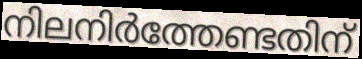
നിലനിർത്തേണ്ടതിന്